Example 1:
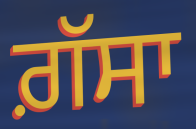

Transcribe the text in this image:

ਗ਼ੱਸਾ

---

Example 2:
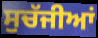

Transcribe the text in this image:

ਸੁਚੱਜੀਆਂ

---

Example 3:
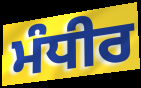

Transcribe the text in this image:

ਮੰਧੀਰ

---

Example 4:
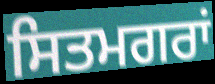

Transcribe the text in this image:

ਸਿਤਮਗਰਾਂ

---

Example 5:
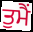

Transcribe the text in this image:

ਤੁਮੈਂ